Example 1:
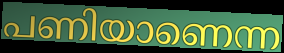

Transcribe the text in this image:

പണിയാണെന്ന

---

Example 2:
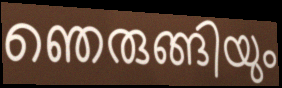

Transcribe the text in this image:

ഞെരുങ്ങിയും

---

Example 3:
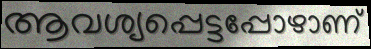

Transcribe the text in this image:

ആവശ്യപ്പെട്ടപ്പോഴാണ്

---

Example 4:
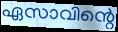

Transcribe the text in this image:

ഏസാവിന്റെ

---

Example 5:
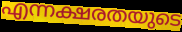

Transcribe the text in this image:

എന്നക്ഷരതയുടെ